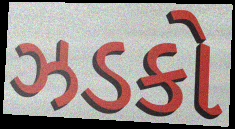
ઝડકો